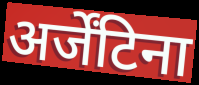
अर्जेंटिना